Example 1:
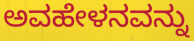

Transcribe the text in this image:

ಅವಹೇಳನವನ್ನು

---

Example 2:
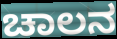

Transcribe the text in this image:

ಚಾಲನ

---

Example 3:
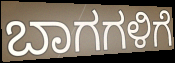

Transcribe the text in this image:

ಬಾಗಗಳಿಗೆ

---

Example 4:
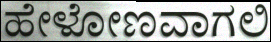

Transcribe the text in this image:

ಹೇಳೋಣವಾಗಲಿ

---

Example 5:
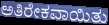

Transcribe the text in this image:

ಅತಿರೇಕವಾಯಿತು